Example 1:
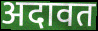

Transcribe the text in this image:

अदावत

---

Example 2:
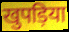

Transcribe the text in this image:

खुपड़िया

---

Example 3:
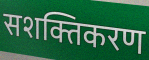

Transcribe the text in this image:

सशक्‍तिकरण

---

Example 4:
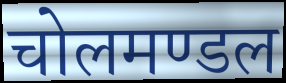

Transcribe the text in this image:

चोलमण्डल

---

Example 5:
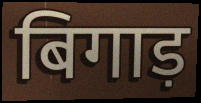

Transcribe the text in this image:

बिगाड़